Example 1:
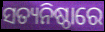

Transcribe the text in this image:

ସତ୍ୟନିଷ୍ଠାରେ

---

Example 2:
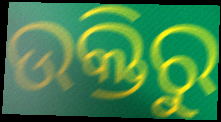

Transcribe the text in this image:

ଉକ୍ତିରୁ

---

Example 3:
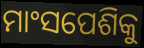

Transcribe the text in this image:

ମାଂସପେଶିକୁ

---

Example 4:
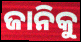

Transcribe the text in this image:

ଜାନିକୁ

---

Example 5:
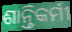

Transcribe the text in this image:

ଶାନ୍ତିକର୍ମୀ